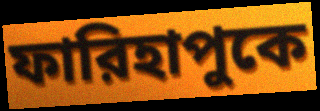
ফারিহাপুকে